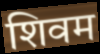
शिवम